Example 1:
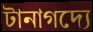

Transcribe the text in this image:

টানাগদ্যে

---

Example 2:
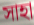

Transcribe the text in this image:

সাহা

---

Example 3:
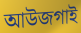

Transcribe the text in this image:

আউজগাই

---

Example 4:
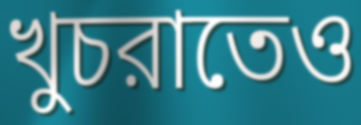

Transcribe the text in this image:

খুচরাতেও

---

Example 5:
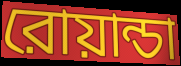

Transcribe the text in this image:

রোয়ান্ডা